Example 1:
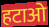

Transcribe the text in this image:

हटाओ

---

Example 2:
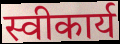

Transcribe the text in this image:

स्‍वीकार्य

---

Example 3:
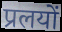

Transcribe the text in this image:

प्रलयों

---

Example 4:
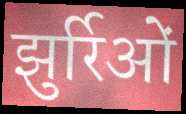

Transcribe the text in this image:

झुर्रिओं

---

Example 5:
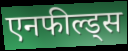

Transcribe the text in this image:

एनफील्ड्स